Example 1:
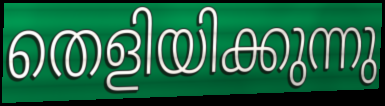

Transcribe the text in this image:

തെളിയിക്കുന്നു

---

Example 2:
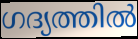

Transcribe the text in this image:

ഗദ്യത്തിൽ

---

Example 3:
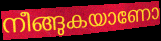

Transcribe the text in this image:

നീങ്ങുകയാണോ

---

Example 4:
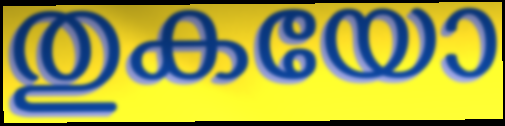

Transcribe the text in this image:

തുകയോ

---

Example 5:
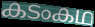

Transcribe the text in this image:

കടംകഥ